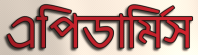
এপিডার্মিস